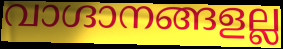
വാഗ്ദാനങ്ങളല്ല